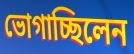
ভোগাচ্ছিলেন